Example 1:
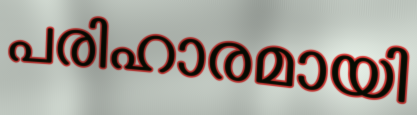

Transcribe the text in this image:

പരിഹാരമായി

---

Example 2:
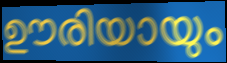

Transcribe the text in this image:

ഊരിയായും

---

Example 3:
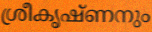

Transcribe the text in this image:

ശ്രീകൃഷ്ണനും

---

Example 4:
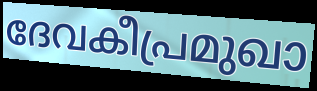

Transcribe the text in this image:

ദേവകീപ്രമുഖാ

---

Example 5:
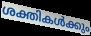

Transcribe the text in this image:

ശക്തികൾക്കും